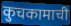
कुचकामाची